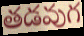
తడవుగ